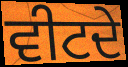
ਵੀਟਦੇ